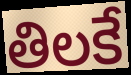
తిలకే